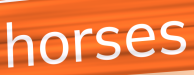
horses